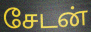
சேடன்